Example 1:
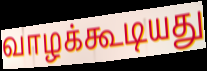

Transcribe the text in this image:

வாழக்கூடியது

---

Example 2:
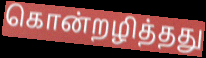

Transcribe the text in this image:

கொன்றழித்தது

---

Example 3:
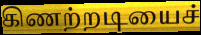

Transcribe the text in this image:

கிணற்றடியைச்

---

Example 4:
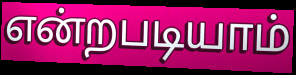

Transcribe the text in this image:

என்றபடியாம்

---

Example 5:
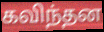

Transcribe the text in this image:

கவிந்தன